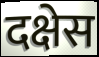
दक्षेस